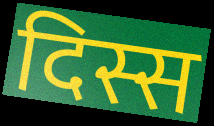
दिस्स